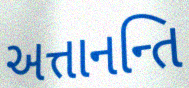
અત્તાનન્તિ